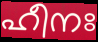
ഹീനഃ